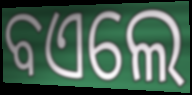
ବଏଲେ